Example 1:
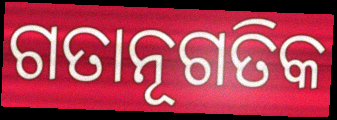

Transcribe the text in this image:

ଗତାନୂଗତିକ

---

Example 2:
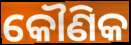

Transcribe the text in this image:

କୌଣିକ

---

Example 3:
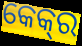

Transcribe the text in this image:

କେକ୍‌ର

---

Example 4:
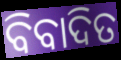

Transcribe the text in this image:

ବିବାଦିତ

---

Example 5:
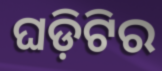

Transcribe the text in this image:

ଘଡ଼ିଟିର